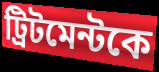
ট্রিটমেন্টকে